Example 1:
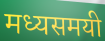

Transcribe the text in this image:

मध्यसमयी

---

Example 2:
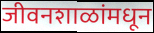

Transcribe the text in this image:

जीवनशाळांमधून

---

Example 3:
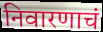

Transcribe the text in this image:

निवारणाचं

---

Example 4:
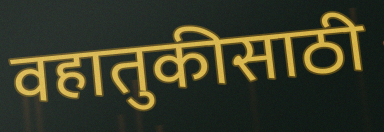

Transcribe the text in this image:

वहातुकीसाठी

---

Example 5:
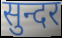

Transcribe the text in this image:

सुन्दर